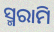
ସ୍ମରାମି